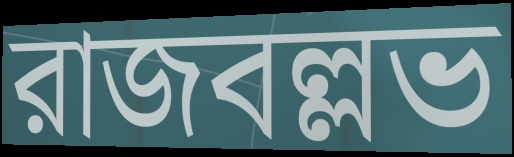
রাজবল্লভ